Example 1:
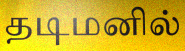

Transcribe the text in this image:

தடிமனில்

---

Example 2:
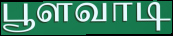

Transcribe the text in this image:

பூளவாடி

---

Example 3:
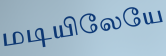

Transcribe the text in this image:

மடியிலேயே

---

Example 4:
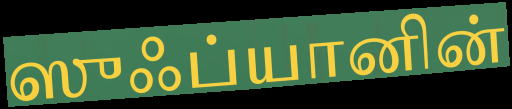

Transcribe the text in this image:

ஸுஃப்யானின்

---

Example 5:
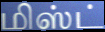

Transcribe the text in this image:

மிஸ்ட்